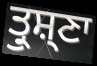
ਤ੍ਰੁਸ਼੍ਣਾ